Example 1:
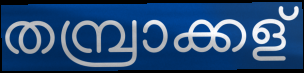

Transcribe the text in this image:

തമ്പ്രാക്കള്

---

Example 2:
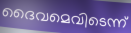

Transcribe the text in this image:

ദൈവമെവിടെന്ന്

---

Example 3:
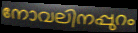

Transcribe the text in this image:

നോവലിനപ്പുറം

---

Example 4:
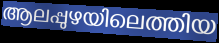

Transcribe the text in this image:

ആലപ്പുഴയിലെത്തിയ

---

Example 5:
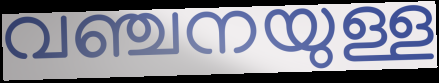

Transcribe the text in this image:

വഞ്ചനയുള്ള